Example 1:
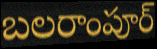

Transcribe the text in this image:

బలరాంపూర్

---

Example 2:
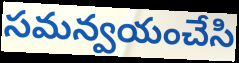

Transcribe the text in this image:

సమన్వయంచేసి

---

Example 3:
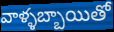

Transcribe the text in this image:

వాళ్ళబ్బాయితో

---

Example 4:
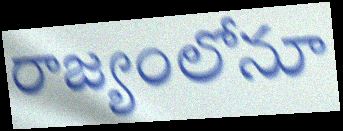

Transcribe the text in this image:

రాజ్యంలోనూ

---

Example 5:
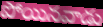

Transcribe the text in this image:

పోయినవాడు